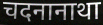
चदनानाथा